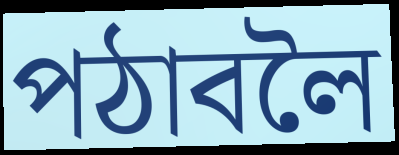
পঠাবলৈ